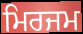
ਮਿਰਜਮ